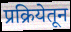
प्रक्रियेतून